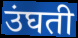
उंघती